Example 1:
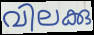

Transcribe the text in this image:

വിലക്കു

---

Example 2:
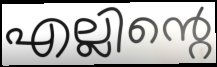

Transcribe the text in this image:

എല്ലിന്റെ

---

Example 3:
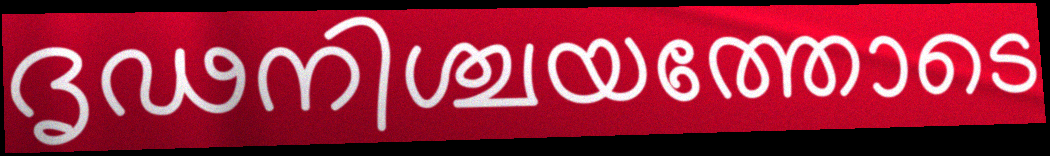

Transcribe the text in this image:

ദൃഢനിശ്ചയത്തോടെ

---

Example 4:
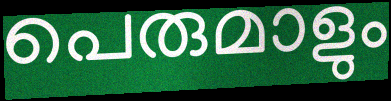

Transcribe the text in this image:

പെരുമാളും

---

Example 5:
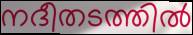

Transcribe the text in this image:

നദീതടത്തിൽ